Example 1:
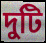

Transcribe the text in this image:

দুটি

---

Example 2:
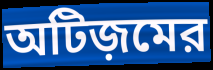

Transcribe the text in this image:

অটিজ়মের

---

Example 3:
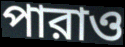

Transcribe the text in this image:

পারাও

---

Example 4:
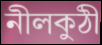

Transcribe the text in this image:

নীলকুঠী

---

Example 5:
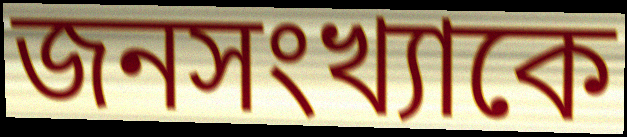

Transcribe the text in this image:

জনসংখ্যাকে